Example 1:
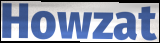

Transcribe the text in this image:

Howzat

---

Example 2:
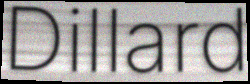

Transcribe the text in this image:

Dillard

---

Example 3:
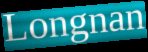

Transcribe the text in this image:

Longnan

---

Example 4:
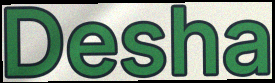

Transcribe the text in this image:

Desha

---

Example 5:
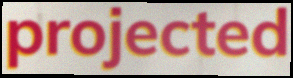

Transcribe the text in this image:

projected